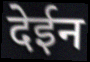
देईन